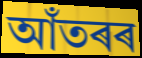
আঁতৰৰ